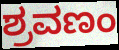
ಶ್ರವಣಂ